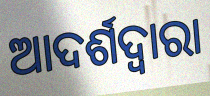
ଆଦର୍ଶଦ୍ୱାରା